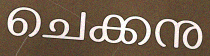
ചെക്കനു